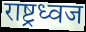
राष्ट्रध्वज